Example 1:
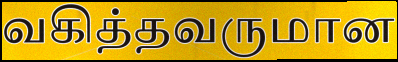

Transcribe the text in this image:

வகித்தவருமான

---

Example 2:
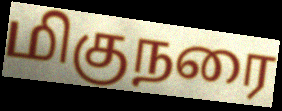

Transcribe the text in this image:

மிகுநரை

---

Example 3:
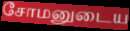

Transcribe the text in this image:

சோமனுடைய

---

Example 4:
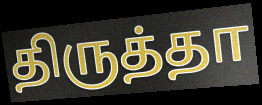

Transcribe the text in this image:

திருத்தா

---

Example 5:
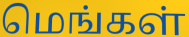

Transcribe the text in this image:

மெங்கள்